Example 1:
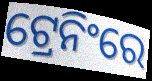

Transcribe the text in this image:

ଟ୍ରେନିଂରେ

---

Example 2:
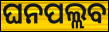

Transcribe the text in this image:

ଘନପଲ୍ଲବ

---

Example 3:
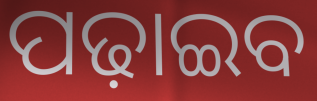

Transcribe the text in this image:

ପଢ଼ାଇବ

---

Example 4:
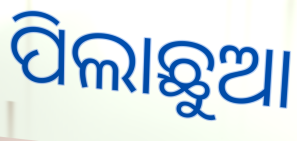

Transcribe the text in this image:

ପିଲାଛୁଆ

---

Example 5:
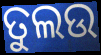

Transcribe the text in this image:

ତୁଲଉ